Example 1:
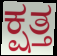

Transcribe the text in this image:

ಕ್ಷತ್ತ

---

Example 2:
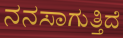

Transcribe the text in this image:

ನನಸಾಗುತ್ತಿದೆ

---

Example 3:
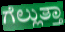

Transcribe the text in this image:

ಗೆಲ್ಲುತ್ತಾ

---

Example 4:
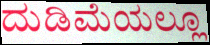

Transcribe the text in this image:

ದುಡಿಮೆಯಲ್ಲೂ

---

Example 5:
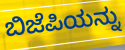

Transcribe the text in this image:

ಬಿಜೆಪಿಯನ್ನು